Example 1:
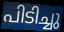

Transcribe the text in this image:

പിടിച്ചു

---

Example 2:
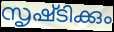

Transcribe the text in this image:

സൃഷ്‌ടിക്കും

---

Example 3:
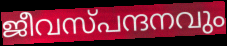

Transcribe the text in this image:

ജീവസ്പന്ദനവും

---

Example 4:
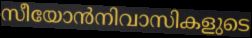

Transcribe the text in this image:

സീയോൻനിവാസികളുടെ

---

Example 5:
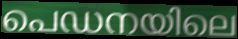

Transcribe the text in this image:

പെഡനയിലെ